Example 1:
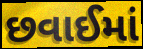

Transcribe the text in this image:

છવાઈમાં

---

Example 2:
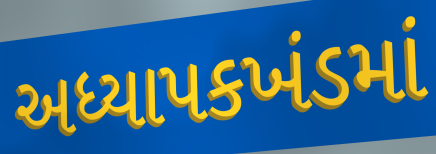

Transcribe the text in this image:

અધ્યાપકખંડમાં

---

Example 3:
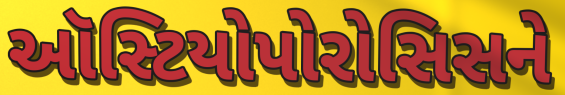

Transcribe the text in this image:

ઑસ્ટિયોપોરોસિસને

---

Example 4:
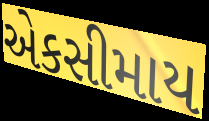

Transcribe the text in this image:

એકસીમાય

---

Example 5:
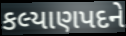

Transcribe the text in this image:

કલ્યાણપદને